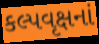
કલ્પવૃક્ષનાં